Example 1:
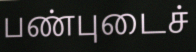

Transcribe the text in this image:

பண்புடைச்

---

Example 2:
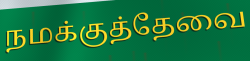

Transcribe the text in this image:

நமக்குத்தேவை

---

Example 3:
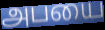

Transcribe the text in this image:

அபயை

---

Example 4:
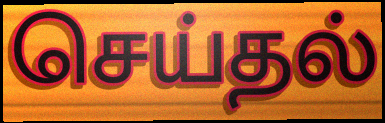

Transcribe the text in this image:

செய்தல்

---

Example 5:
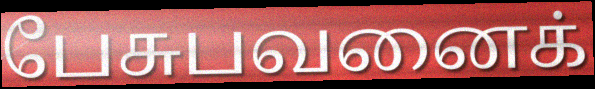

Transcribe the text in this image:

பேசுபவனைக்